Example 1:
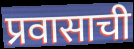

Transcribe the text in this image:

प्रवासाची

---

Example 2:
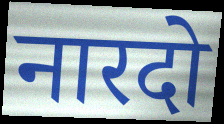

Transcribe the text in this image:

नारदो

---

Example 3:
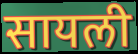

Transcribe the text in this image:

सायली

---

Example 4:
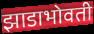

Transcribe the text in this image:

झाडाभोवती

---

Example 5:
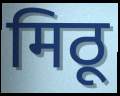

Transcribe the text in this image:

मिठू